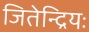
जितेन्द्रियः